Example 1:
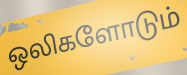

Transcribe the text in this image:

ஒலிகளோடும்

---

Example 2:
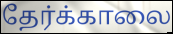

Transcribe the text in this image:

தேர்க்காலை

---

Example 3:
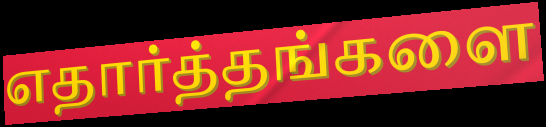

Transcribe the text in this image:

எதார்த்தங்களை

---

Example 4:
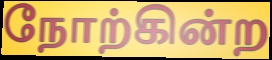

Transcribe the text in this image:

நோற்கின்ற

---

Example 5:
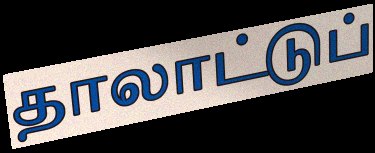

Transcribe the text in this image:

தாலாட்டுப்